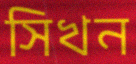
সিখন